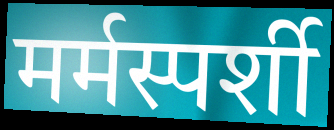
मर्मस्पर्शी